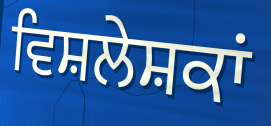
ਵਿਸ਼ਲੇਸ਼ਕਾਂ